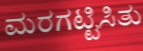
ಮರಗಟ್ಟಿಸಿತು